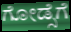
ಗೋಡ್ಸೆಗೆ